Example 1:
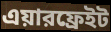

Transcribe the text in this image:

এয়ারফ্রেইট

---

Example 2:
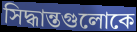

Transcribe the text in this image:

সিদ্ধান্তগুলোকে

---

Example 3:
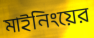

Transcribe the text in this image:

মাইনিংয়ের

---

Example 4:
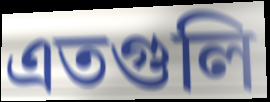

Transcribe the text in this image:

এতগুলি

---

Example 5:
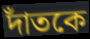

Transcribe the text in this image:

দাঁতকে